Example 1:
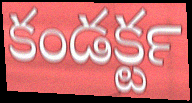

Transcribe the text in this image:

కండక్టర్‍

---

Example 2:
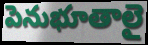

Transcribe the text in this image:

పెనుభూతాలై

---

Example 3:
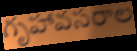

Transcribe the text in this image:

గృహావసరాల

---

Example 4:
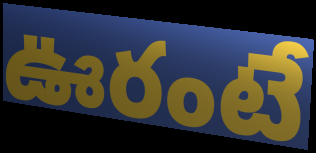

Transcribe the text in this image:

ఊరంటే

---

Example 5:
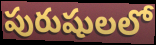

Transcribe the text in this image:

పురుషులలో